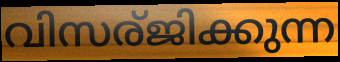
വിസര്ജിക്കുന്ന